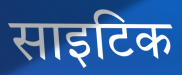
साइटिक